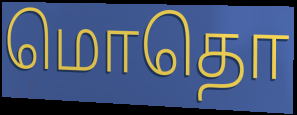
மொதொ